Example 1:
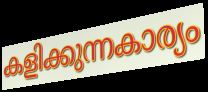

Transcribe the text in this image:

കളിക്കുന്നകാര്യം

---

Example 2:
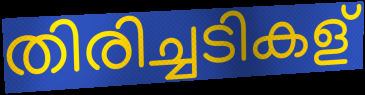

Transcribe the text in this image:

തിരിച്ചടികള്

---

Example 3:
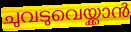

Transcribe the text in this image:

ചുവടുവെയ്ക്കാൻ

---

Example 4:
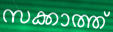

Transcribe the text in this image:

സക്കാത്ത്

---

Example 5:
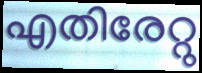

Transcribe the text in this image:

എതിരേറ്റു